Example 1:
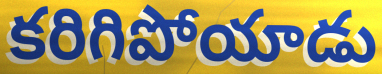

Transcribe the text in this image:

కరిగిపోయాడు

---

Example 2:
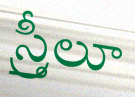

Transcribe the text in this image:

స్ర్తీలూ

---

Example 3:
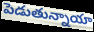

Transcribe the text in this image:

పెడుతున్నాయా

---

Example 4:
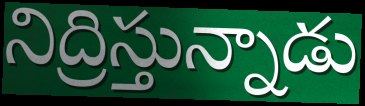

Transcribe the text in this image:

నిద్రిస్తున్నాడు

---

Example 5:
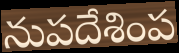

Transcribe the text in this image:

నుపదేశింప